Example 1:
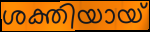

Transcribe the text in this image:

ശക്തിയായ്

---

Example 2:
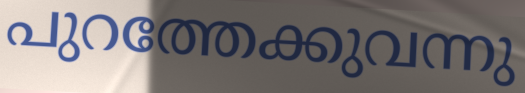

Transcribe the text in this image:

പുറത്തേക്കുവന്നു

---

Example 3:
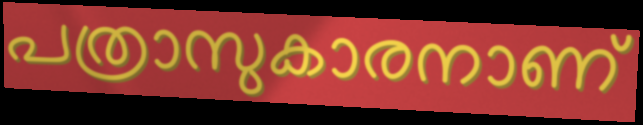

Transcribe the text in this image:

പത്രാസുകാരനാണ്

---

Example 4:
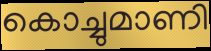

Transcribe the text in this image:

കൊച്ചുമാണി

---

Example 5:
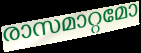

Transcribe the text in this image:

രാസമാറ്റമോ